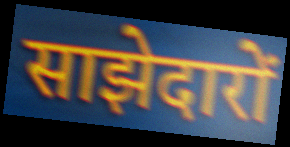
साझेदारों